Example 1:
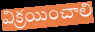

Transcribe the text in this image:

విక్రయించాలి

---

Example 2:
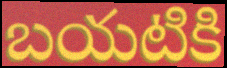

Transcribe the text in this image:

బయటికి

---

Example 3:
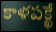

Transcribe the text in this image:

కాళపక్ఖే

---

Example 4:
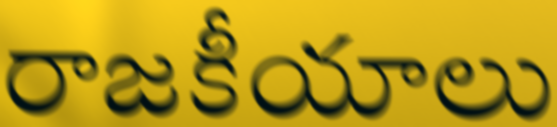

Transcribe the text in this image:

రాజకీయాలు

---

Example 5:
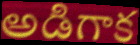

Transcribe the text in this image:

అడిగాక